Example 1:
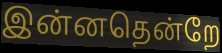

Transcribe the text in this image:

இன்னதென்றே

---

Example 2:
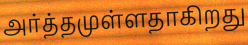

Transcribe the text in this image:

அர்த்தமுள்ளதாகிறது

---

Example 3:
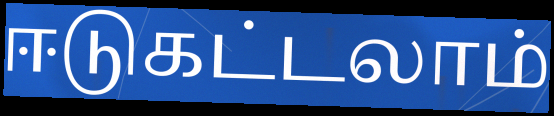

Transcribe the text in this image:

ஈடுகட்டலாம்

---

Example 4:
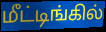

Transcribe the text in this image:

மீட்டிங்கில்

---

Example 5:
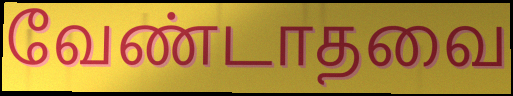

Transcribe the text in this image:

வேண்டாதவை